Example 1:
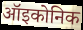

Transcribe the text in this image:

ऑइकोनिक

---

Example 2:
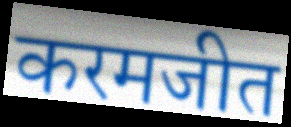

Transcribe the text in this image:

करमजीत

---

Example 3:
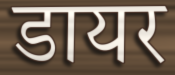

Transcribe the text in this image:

डायर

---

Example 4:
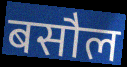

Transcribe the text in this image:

बसौल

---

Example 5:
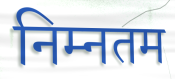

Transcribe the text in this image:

निम्नतम